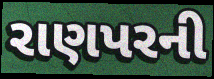
રાણપરની